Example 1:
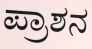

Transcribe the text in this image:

ಪ್ರಾಶನ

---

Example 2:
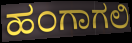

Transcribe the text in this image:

ಹಂಗಾಗಲಿ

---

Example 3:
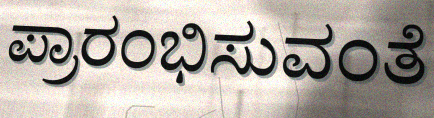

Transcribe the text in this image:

ಪ್ರಾರಂಭಿಸುವಂತೆ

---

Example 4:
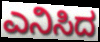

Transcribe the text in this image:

ಎನಿಸಿದ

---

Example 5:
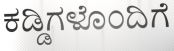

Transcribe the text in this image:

ಕಡ್ಡಿಗಳೊಂದಿಗೆ